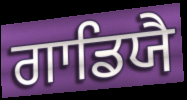
ਗਾਡਿਯੈ